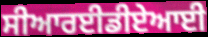
ਸੀਆਰਈਡੀਏਆਈ